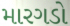
મારગડો